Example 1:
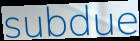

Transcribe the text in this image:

subdue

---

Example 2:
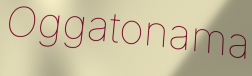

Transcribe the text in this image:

Oggatonama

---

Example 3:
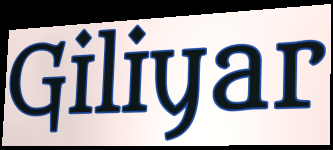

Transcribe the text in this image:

Giliyar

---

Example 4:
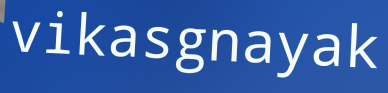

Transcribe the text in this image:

vikasgnayak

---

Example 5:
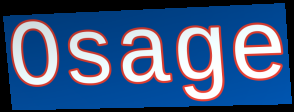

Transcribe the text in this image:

Osage